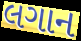
લગાન